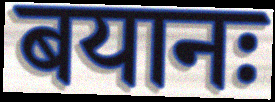
बयानः